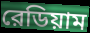
রেডিয়াম